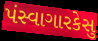
પંસ્વાગારકેસુ